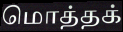
மொத்தக்